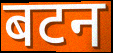
बटन